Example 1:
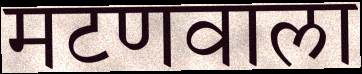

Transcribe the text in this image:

मटणवाला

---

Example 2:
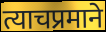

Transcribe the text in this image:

त्याचप्रमाने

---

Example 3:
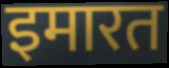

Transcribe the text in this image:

इमारत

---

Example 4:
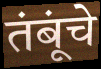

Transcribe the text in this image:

तंबूंचे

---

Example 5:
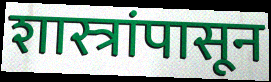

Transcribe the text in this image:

शास्त्रांपासून